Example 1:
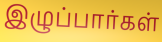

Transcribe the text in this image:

இழுப்பார்கள்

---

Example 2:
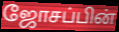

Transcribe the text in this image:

ஜோசப்பின்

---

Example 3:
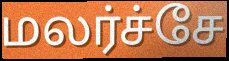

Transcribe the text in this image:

மலர்ச்சே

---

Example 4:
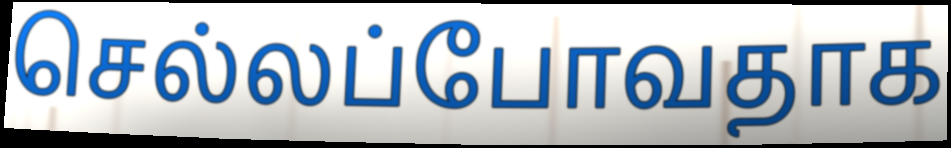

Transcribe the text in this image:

செல்லப்போவதாக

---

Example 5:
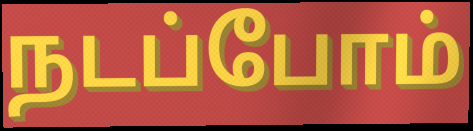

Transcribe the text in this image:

நடப்போம்